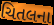
ચિતલના